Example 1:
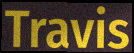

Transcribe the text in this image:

Travis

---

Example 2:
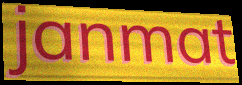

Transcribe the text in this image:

janmat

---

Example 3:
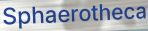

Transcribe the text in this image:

Sphaerotheca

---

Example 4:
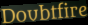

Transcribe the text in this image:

Doubtfire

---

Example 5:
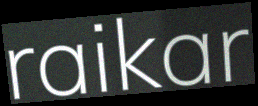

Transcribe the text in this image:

raikar